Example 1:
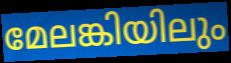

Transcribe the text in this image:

മേലങ്കിയിലും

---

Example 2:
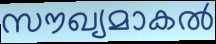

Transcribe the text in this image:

സൗഖ്യമാകൽ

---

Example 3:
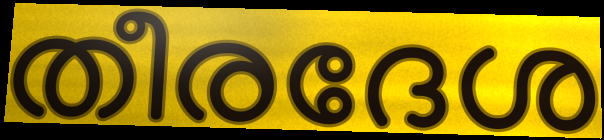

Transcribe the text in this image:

തീരദേശ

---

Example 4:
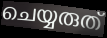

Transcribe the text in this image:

ചെയ്യരുത്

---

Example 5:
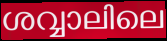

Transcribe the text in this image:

ശവ്വാലിലെ